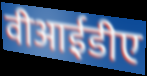
वीआईडीए